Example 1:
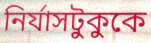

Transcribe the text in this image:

নির্যাসটুকুকে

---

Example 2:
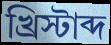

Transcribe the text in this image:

খ্রিস্টাব্দ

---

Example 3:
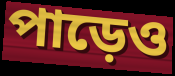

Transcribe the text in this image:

পাড়েও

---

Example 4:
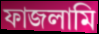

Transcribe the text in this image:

ফাজলামি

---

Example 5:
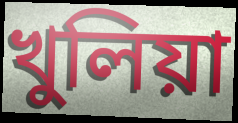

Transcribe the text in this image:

খুলিয়া